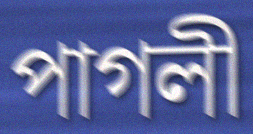
পাগলী